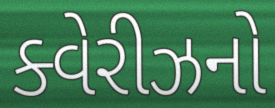
ક્વેરીઝનો